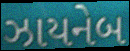
ઝાયનેબ